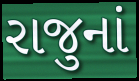
રાજુનાં